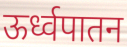
ऊर्ध्वपातन